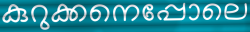
കുറുക്കനെപ്പോലെ